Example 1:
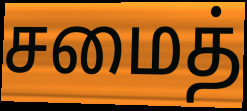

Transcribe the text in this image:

சமைத்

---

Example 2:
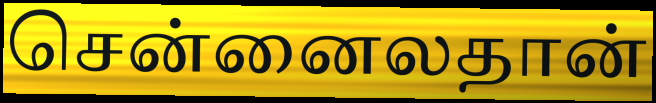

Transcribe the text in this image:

சென்னைலதான்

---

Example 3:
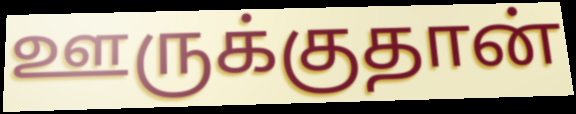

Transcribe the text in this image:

ஊருக்குதான்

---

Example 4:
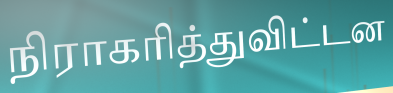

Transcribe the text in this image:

நிராகரித்துவிட்டன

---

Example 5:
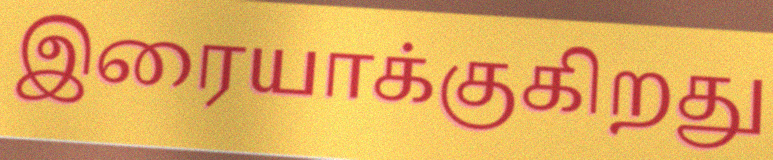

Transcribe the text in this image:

இரையாக்குகிறது